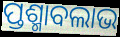
ପ୍ତଶ୍ମାବଲାଭ